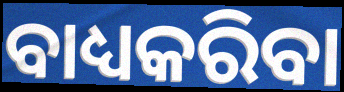
ବାଧ୍ୟକରିବା